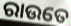
ରାଉତେ